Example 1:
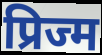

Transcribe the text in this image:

प्रिज्म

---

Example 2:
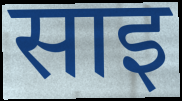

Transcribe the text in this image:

साइ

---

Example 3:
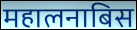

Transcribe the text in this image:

महालनाबिस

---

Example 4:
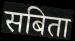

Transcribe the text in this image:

सबिता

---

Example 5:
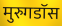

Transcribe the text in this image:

मुरुगडॉस